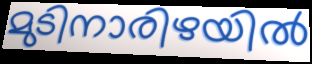
മുടിനാരിഴയിൽ